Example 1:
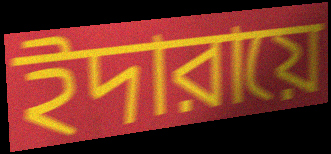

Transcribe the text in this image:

ইদারায়ে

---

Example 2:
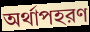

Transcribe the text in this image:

অর্থাপহরণ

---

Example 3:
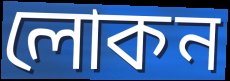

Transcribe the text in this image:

লোকন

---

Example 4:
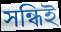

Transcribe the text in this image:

সন্ধিই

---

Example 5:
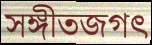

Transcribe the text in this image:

সঙ্গীতজগৎ